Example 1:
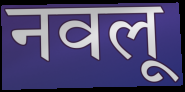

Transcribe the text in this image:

नवलू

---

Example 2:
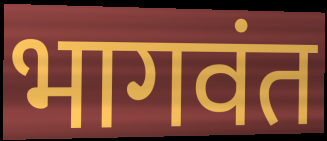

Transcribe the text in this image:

भागवंत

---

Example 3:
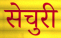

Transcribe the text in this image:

सेचुरी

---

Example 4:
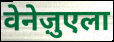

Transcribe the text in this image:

वेनेज़ुएला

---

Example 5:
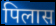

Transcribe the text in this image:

पिलास